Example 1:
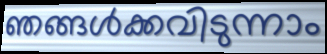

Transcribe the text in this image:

ഞങ്ങൾക്കവിടുന്നാം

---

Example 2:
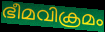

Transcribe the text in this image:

ഭീമവിക്രമം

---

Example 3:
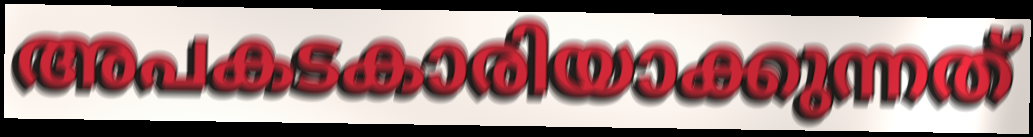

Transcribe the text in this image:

അപകടകാരിയാക്കുന്നത്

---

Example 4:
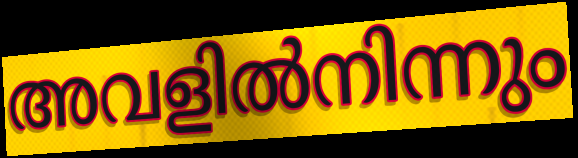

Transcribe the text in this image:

അവളിൽനിന്നും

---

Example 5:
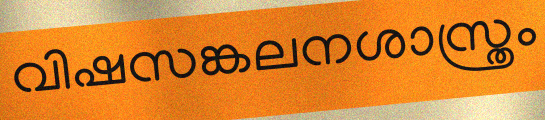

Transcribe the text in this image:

വിഷസങ്കലനശാസ്ത്രം